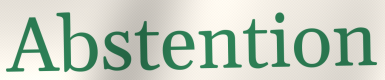
Abstention